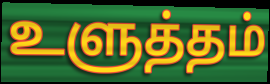
உளுத்தம்